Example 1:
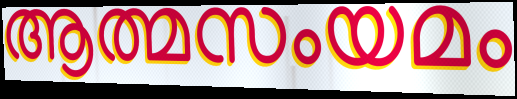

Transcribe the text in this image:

ആത്മസംയമം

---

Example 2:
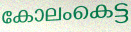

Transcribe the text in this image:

കോലംകെട്ട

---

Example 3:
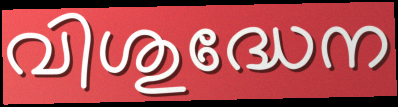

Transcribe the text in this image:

വിശുദ്ധേന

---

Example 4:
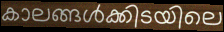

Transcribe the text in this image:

കാലങ്ങൾക്കിടയിലെ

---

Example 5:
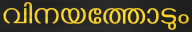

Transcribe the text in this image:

വിനയത്തോടും